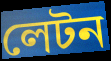
লেটন